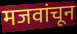
मजवांचून